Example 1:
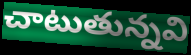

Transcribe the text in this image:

చాటుతున్నవి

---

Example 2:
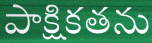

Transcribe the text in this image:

పాక్షికతను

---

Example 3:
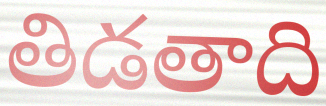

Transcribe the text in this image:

తిడతాది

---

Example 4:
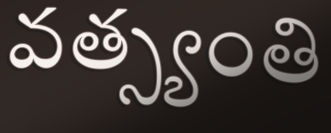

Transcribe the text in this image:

వత్స్యంతి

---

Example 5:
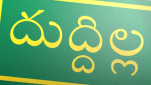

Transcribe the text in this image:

దుద్దిల్ల